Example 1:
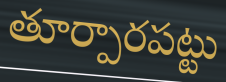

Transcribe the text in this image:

తూర్పారపట్టు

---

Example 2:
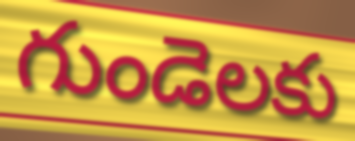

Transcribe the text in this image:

గుండెలకు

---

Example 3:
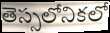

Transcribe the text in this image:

తెస్సలోనికలో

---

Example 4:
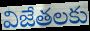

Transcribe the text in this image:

విజేతలకు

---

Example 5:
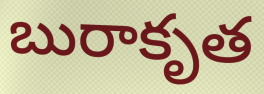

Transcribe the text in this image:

బురాకృత